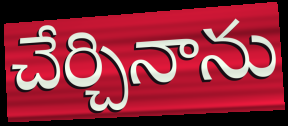
చేర్చినాను